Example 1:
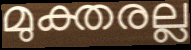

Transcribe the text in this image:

മുക്തരല്ല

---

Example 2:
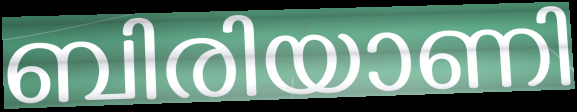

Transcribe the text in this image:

ബിരിയാണി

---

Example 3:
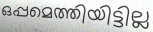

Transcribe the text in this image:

ഒപ്പമെത്തിയിട്ടില്ല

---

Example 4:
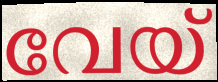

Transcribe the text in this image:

വേയ്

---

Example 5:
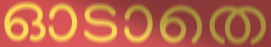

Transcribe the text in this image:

ഓടാതെ